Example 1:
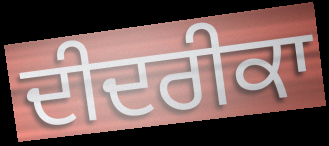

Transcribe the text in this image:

ਦੀਦਰੀਕਾ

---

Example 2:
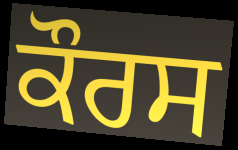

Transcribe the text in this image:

ਕੌਰਸ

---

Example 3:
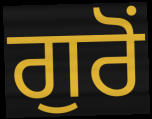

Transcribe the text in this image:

ਗੁਰੋਂ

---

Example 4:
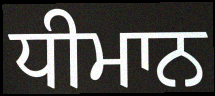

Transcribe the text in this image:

ਧੀਮਾਨ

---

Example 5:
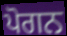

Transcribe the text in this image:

ਪੋਗਨ